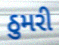
ઠુમરી